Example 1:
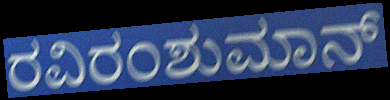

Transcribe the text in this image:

ರವಿರಂಶುಮಾನ್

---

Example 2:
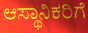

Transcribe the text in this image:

ಆಸ್ಥಾನಿಕರಿಗೆ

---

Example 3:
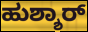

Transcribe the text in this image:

ಹುಶ್ಶಾರ್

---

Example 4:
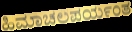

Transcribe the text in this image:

ಹಿಮಾಚಲಪರ್ಯಂತ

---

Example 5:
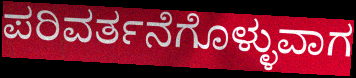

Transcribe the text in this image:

ಪರಿವರ್ತನೆಗೊಳ್ಳುವಾಗ